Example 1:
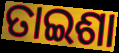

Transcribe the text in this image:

ତାଇଶା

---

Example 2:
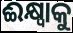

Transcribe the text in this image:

ଈକ୍ଷ୍ୱାକୁ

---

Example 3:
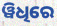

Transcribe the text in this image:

ୱିଧିରେ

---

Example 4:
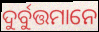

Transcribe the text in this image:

ଦୁର୍ବୁତ୍ତମାନେ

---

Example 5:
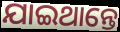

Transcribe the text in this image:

ଯାଇଥାନ୍ତେ